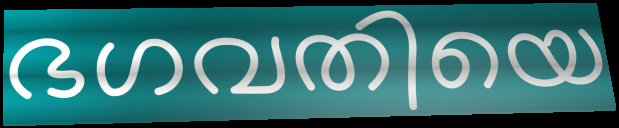
ഭഗവതിയെ